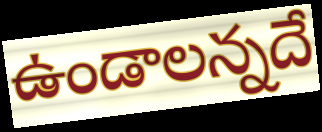
ఉండాలన్నదే